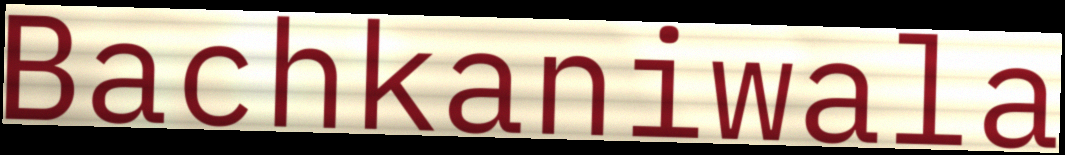
Bachkaniwala